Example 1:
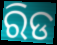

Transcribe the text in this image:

ରିଡ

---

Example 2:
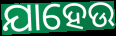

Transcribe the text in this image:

ଯାହେଉ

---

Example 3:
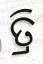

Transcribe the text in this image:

ତ୍ରି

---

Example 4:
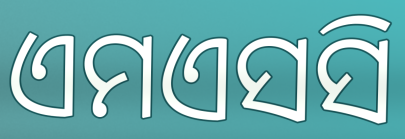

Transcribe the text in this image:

ଏମଏସସି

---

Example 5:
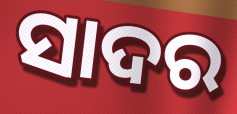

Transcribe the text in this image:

ସାଦର